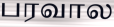
பரவால